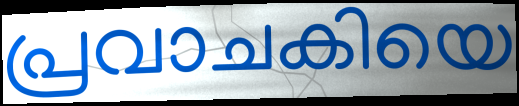
പ്രവാചകിയെ